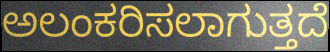
ಅಲಂಕರಿಸಲಾಗುತ್ತದೆ